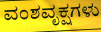
ವಂಶವೃಕ್ಷಗಳು